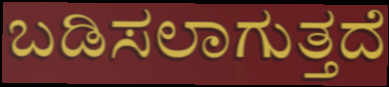
ಬಡಿಸಲಾಗುತ್ತದೆ